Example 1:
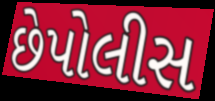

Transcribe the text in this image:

છેપોલીસ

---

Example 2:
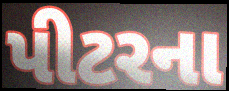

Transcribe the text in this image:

પીટરના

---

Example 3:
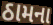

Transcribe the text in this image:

ઠામના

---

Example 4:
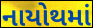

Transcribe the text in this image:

નાયોથમાં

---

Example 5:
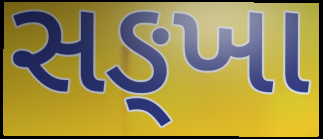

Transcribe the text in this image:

સઙ્ખા